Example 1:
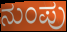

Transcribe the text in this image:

ನುಂಪು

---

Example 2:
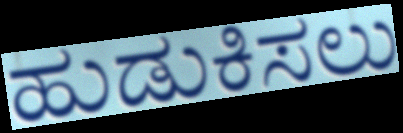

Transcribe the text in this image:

ಹುಡುಕಿಸಲು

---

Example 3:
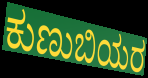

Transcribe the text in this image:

ಕುಣುಬಿಯರ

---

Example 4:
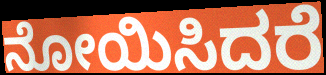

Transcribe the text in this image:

ನೋಯಿಸಿದರೆ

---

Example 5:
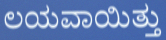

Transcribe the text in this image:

ಲಯವಾಯಿತ್ತು